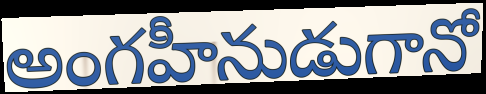
అంగహీనుడుగానో